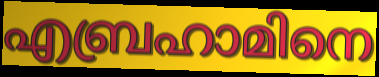
എബ്രഹാമിനെ